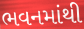
ભવનમાંથી